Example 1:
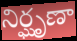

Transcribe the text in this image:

నిర్ఘృణా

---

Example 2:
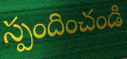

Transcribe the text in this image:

స్పందించండి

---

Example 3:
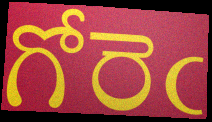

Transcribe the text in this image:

గోరెఁ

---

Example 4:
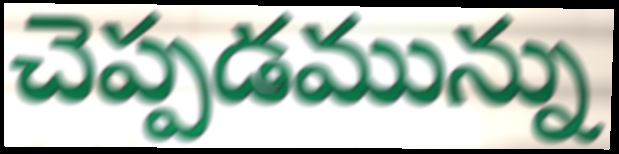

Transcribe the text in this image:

చెప్పడమున్ను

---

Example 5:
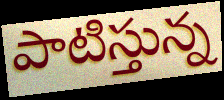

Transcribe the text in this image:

పాటిస్తున్న